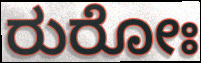
ರುರೋಃ